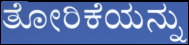
ತೋರಿಕೆಯನ್ನು